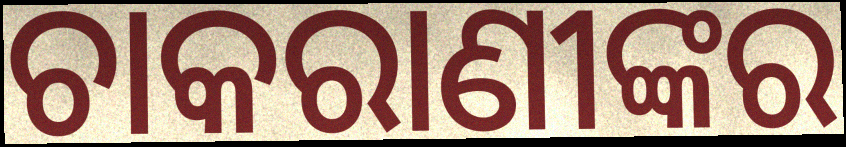
ଚାକରାଣୀଙ୍କର